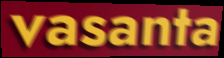
vasanta